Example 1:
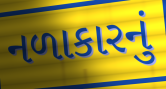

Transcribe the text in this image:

નળાકારનું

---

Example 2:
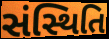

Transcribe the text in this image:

સંસ્થિતિ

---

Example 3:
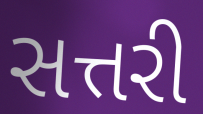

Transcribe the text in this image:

સત્તરી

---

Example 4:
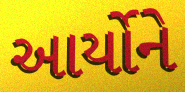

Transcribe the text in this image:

આર્યોને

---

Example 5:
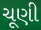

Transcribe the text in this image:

ચૂણી